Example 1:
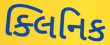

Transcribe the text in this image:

ક્લિનિક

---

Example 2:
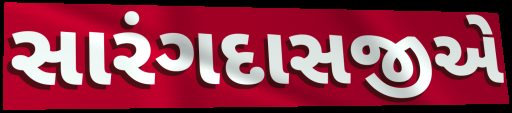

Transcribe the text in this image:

સારંગદાસજીએ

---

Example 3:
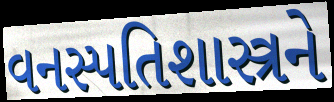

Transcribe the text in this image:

વનસ્પતિશાસ્ત્રને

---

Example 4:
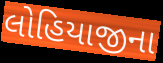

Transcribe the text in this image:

લોહિયાજીના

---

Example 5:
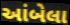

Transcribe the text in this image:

આંબેલા